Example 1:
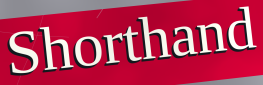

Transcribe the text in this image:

Shorthand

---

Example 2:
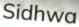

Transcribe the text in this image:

Sidhwa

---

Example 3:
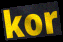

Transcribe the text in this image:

kor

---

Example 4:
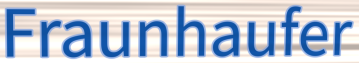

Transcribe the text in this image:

Fraunhaufer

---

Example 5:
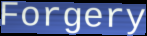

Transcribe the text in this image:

Forgery